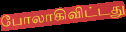
போலாகிவிட்டது